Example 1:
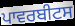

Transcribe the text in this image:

ਪਾਵਰਬੀਟਸ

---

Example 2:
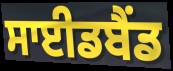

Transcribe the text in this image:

ਸਾਈਡਬੈਂਡ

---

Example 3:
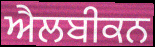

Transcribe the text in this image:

ਐਲਬੀਕਨ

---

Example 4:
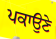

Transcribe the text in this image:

ਪਕਾਉਣੇ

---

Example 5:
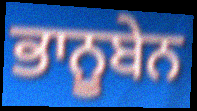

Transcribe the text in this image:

ਭਾਨੂਬੇਨ